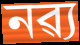
নৱ্য